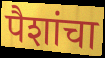
पैशांचा